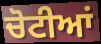
ਚੋਟੀਆਂ